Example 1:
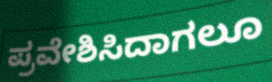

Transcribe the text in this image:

ಪ್ರವೇಶಿಸಿದಾಗಲೂ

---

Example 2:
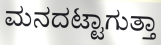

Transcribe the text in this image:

ಮನದಟ್ಟಾಗುತ್ತಾ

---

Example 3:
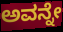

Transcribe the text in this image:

ಅವನ್ನೇ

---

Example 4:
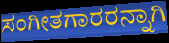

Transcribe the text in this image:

ಸಂಗೀತಗಾರರನ್ನಾಗಿ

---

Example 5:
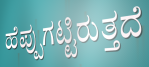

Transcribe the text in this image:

ಹೆಪ್ಪುಗಟ್ಟಿರುತ್ತದೆ